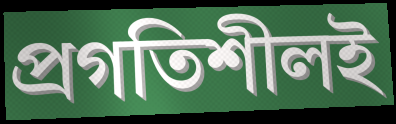
প্রগতিশীলই